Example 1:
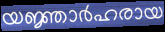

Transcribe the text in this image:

യജ്ഞാർഹരായ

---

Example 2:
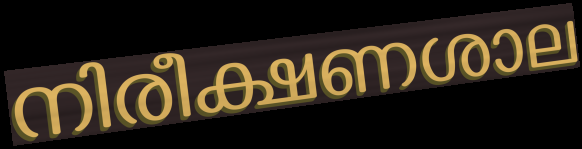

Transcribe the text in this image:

നിരീക്ഷണശാല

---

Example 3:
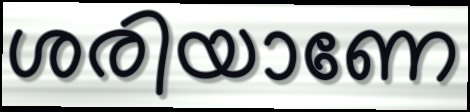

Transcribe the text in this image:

ശരിയാണേ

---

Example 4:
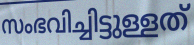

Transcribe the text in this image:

സംഭവിച്ചിട്ടുള്ളത്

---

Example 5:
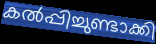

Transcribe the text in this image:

കൽപ്പിച്ചുണ്ടാക്കി